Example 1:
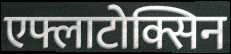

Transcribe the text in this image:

एफ्लाटोक्सिन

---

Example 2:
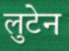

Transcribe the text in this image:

लुटेन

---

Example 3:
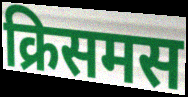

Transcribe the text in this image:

क्रिसमस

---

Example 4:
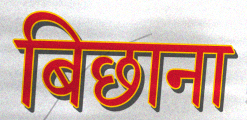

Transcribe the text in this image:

बिछाना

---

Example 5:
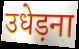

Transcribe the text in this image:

उधेड़ना